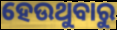
ହେଉଥୁବାରୁ